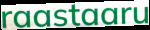
raastaaru